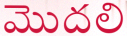
మొదలి